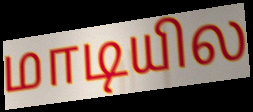
மாடியில